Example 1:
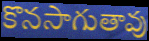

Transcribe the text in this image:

కొనసాగుతావు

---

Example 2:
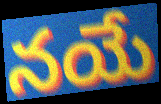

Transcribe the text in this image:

నయే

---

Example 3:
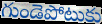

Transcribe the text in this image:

గుండెపోటుకు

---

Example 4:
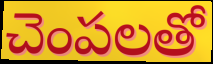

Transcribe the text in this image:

చెంపలతో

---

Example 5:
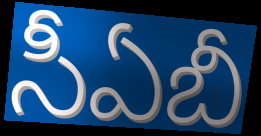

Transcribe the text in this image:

సీఏబీ